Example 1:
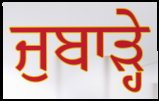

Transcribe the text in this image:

ਜੁਬਾੜ੍ਹੇ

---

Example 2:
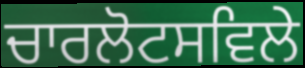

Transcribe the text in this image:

ਚਾਰਲੋਟਸਵਿਲੇ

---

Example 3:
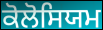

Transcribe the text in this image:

ਕੋਲੋਸਿਯਮ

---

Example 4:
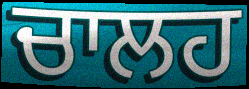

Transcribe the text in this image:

ਚਾਲਹ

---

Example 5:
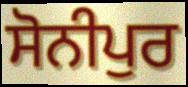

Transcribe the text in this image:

ਸੋਨੀਪੁਰ